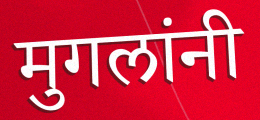
मुगलांनी